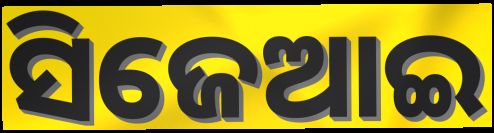
ସିଜେଆଇ